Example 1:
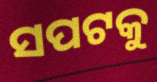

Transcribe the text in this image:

ସପଟକୁ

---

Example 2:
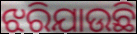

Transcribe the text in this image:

ଝରିଯାଉଛି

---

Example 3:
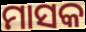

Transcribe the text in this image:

ମାସକ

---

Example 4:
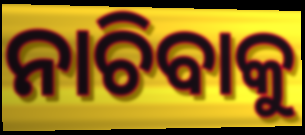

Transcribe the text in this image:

ନାଚିବାକୁ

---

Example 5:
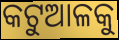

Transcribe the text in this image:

କଟୁଆଳକୁ